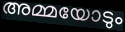
അമ്മയോടും